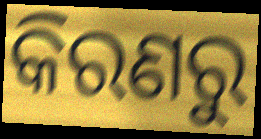
କିରଣରୁ